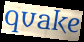
quake